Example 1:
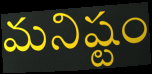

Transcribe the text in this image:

మనిష్టం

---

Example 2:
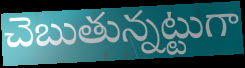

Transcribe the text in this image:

చెబుతున్నట్టుగా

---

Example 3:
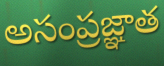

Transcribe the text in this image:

అసంప్రజ్ఞాత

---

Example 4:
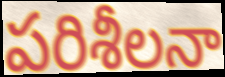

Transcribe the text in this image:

పరిశీలనా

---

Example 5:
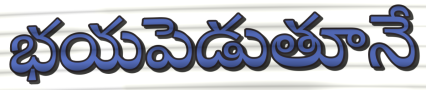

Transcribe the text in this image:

భయపెడుతూనే